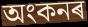
অংকনৰ